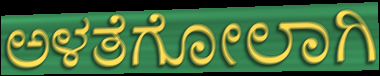
ಅಳತೆಗೋಲಾಗಿ